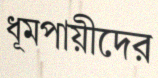
ধূমপায়ীদের